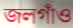
জলগাঁও